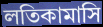
লতিকামাসি